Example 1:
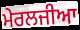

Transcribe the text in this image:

ਮੇਰਲਜੀਆ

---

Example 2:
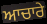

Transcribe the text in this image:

ਆਚਾਰੇ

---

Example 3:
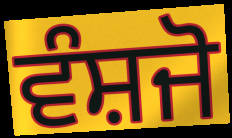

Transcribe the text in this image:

ਵੰਸ਼ਜੋ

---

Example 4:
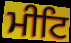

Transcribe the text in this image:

ਮੀਟਿ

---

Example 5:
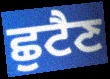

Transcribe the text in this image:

ਛੁਟੈਣ